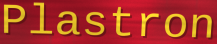
Plastron